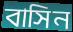
বাসিন